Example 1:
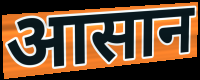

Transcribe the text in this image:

आसान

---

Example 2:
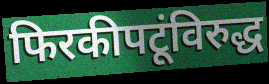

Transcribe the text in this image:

फिरकीपटूंविरुद्ध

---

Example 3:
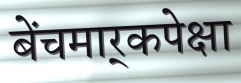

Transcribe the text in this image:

बेंचमार्कपेक्षा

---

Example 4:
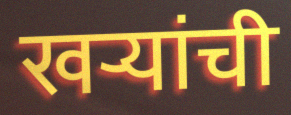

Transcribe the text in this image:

खऱ्यांची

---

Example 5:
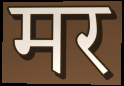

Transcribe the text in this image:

मर